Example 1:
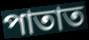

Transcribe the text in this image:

পাতাত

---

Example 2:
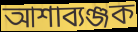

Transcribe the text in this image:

আশাব্যঞ্জক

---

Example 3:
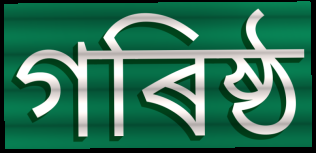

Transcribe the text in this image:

গৰিষ্ঠ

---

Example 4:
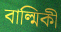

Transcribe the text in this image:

বাল্মিকী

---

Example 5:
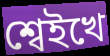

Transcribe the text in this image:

শ্বেইখে